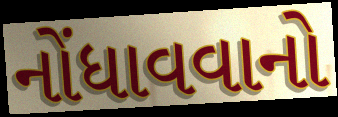
નોંધાવવાનો